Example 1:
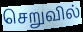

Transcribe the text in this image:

செறுவில்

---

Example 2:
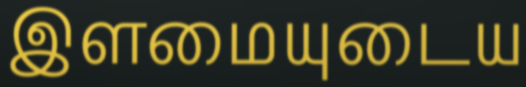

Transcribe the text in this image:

இளமையுடைய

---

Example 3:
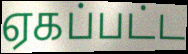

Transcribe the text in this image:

ஏகப்பட்ட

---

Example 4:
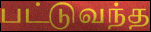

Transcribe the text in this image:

பட்டுவந்த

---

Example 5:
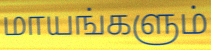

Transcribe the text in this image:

மாயங்களும்